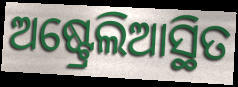
ଅଷ୍ଟ୍ରେଲିଆସ୍ଥିତ